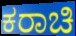
ಕರಾಚಿ